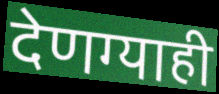
देणग्याही